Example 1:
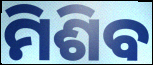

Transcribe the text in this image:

ମିଶିବ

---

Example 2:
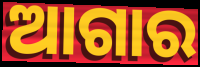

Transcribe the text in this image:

ଆଗାର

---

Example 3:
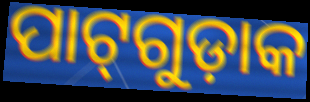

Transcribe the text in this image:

ପାଟ୍‌ଗୁଡ଼ାକ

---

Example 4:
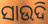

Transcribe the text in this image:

ସାଉଦି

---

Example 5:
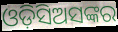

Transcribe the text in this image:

ଓଡ଼ିସିଅସଙ୍କର